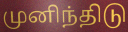
முனிந்திடு